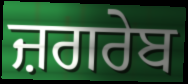
ਜ਼ਗਰੇਬ